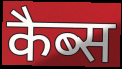
कैब्स